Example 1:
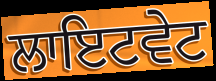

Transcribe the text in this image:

ਲਾਇਟਵੇਟ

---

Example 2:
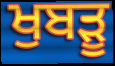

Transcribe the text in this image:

ਖੁਬੜੂ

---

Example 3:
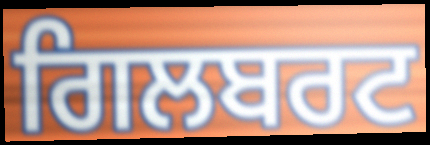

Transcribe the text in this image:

ਗਿਲਬਰਟ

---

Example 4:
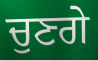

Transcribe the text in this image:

ਚੁਣਗੇ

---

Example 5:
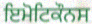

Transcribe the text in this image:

ਇਮੋਟਿਕੌਨਸ